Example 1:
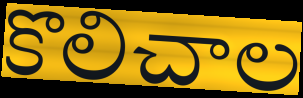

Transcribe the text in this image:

కొలిచాల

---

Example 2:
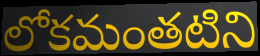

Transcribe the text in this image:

లోకమంతటిని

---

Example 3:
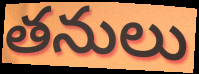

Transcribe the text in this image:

తనులు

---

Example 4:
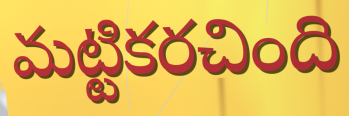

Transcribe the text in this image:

మట్టికరచింది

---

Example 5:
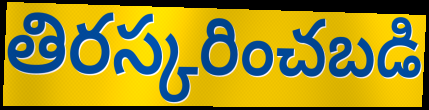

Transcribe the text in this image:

తిరస్కరించబడి